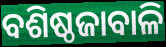
ବଶିଷ୍ଠଜାବାଳି